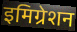
इमिग्रेशन